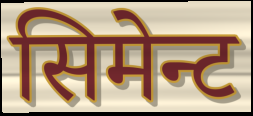
सिमेन्ट